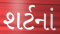
શર્ટનાં